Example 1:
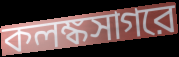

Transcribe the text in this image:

কলঙ্কসাগরে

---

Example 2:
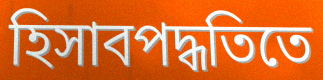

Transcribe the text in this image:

হিসাবপদ্ধতিতে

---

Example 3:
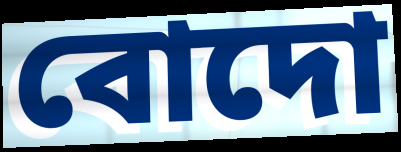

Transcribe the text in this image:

বোদো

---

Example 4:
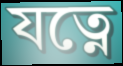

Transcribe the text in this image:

যত্নে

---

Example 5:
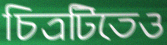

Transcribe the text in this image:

চিত্রটিতেও